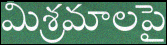
మిశ్రమాలపై